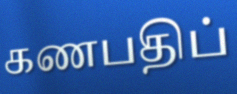
கணபதிப்